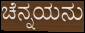
ಚೆನ್ನಯನು